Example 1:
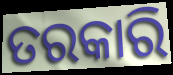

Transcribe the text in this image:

ତରକାରି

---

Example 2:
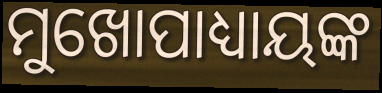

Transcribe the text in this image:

ମୁଖୋପାଧ୍ୟାୟଙ୍କ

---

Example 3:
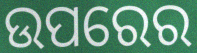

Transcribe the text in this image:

ଉପରେର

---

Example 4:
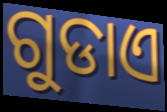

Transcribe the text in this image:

ଗୁଡାଏ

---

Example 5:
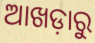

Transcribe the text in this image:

ଆଖଡ଼ାରୁ